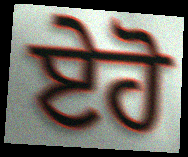
ਏਹੋ